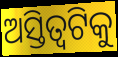
ଅସ୍ତିତ୍ୱଟିକୁ